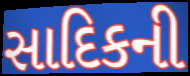
સાદિકની